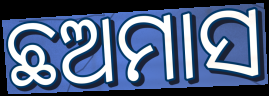
ଛଅମାସ